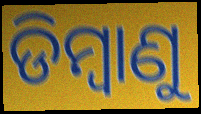
ଡିମ୍ୱାଣୁ